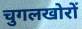
चुगलखोरों